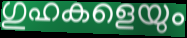
ഗുഹകളെയും